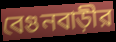
বেগুনবাড়ীর